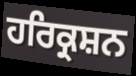
ਹਰਿਕ੍ਰਸ਼ਨ